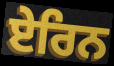
ਏਰਿਨ